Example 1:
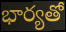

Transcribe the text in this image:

భార్యతో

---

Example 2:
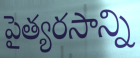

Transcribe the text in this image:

పైత్యరసాన్ని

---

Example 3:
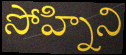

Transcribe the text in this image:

సోహ్నిని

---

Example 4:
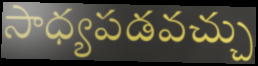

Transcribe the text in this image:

సాధ్యపడవచ్చు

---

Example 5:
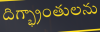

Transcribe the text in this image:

దిగ్భ్రాంతులను